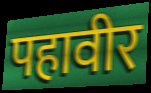
पहावीर